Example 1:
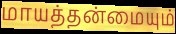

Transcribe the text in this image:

மாயத்தன்மையும்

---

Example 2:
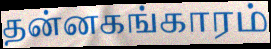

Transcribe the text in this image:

தன்னகங்காரம்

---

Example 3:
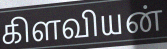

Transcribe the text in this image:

கிளவியன்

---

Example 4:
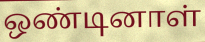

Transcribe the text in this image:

ஒண்டினாள்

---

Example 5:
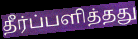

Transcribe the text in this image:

தீர்ப்பளித்தது